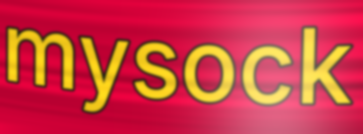
mysock